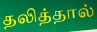
தலித்தால்